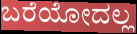
ಬರೆಯೋದಲ್ಲ